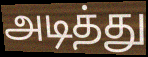
அடித்து